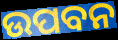
ଉପବନ